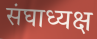
संघाध्यक्ष